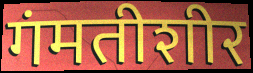
गंमतीशीर